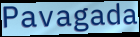
Pavagada